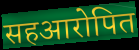
सहआरोपित